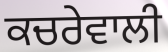
ਕਚਰੇਵਾਲੀ